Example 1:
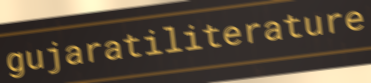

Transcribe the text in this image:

gujaratiliterature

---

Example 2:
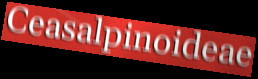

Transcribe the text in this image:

Ceasalpinoideae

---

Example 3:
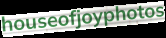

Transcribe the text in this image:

houseofjoyphotos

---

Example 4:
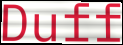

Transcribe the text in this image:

Duff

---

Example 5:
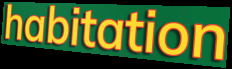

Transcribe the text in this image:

habitation